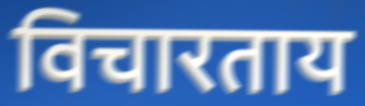
विचारताय